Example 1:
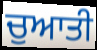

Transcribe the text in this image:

ਚੁਆਤੀ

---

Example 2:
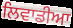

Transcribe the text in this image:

ਲਿਵਾਡੀਆ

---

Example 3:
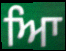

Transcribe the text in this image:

ਆਿ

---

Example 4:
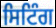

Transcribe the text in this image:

ਸਿਟਿੰਗ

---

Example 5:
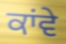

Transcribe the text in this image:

ਕਾਂਵੇ